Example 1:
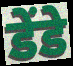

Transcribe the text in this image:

डेंडे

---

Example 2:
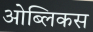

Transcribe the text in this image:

ओब्लिकस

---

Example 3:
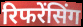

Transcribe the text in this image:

रिफरेंसिंग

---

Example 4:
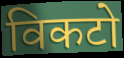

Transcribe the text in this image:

विकटो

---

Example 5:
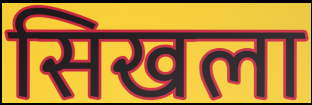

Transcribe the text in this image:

सिखला